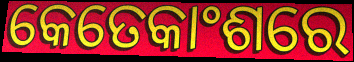
କେତେକାଂଶରେ